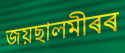
জয়ছালমীৰৰ